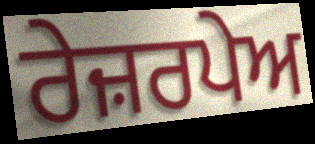
ਰੇਜ਼ਰਪੇਅ